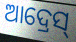
ଆଦ୍ରେସ୍